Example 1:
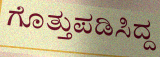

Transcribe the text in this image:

ಗೊತ್ತುಪಡಿಸಿದ್ದ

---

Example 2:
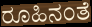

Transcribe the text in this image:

ರೂಹಿನಂತೆ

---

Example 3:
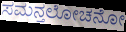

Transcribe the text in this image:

ಸಮನ್ತಲೋಚನೋ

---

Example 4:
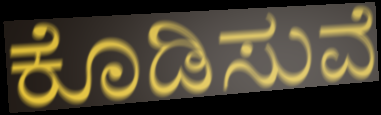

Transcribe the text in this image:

ಕೊಡಿಸುವೆ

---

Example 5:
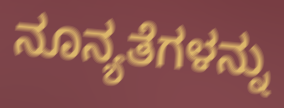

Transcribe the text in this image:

ನೂನ್ಯತೆಗಳನ್ನು